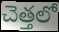
చెత్తలో